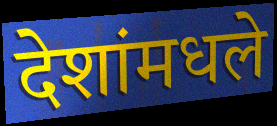
देशांमधले